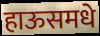
हाऊसमधे